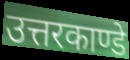
उत्तरकाण्डे